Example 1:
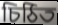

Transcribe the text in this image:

চিঠিত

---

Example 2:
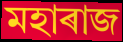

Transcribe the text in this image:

মহাৰাজ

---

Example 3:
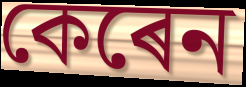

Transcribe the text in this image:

কেৰেন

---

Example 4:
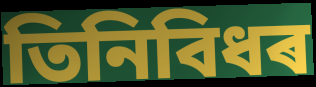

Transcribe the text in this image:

তিনিবিধৰ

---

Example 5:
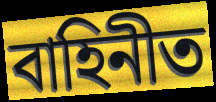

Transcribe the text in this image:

বাহিনীত